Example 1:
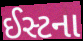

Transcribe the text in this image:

ઈસ્ટના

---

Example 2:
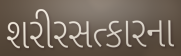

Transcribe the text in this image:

શરીરસત્કારના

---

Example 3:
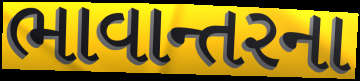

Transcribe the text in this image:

ભાવાન્તરના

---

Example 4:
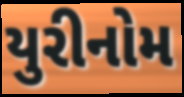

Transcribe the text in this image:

યુરીનોમ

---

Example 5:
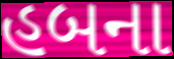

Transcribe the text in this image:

હબના